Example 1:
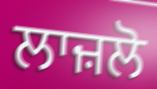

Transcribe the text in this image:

ਲਾਜ਼ਲੋ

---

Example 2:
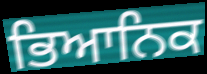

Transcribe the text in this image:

ਭਿਆਨਿਕ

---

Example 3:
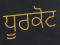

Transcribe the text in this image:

ਧੂਰਕੋਟ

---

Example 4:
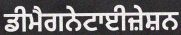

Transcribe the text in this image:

ਡੀਮੈਗਨੇਟਾਈਜ਼ੇਸ਼ਨ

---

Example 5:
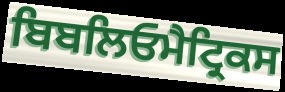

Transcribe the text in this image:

ਬਿਬਲਿਓਮੈਟ੍ਰਿਕਸ